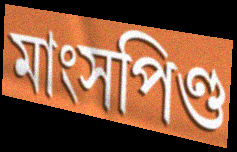
মাংসপিণ্ড